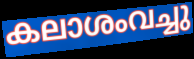
കലാശംവച്ചു